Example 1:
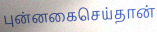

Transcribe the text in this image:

புன்னகைசெய்தான்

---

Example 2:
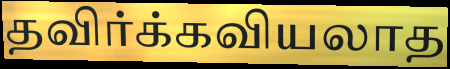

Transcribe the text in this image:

தவிர்க்கவியலாத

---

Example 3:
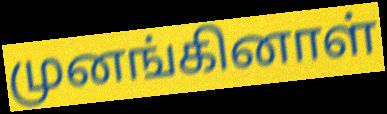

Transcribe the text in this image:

முனங்கினாள்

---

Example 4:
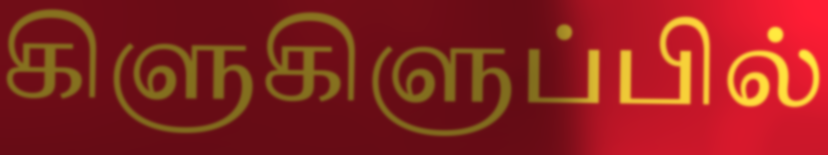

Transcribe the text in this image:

கிளுகிளுப்பில்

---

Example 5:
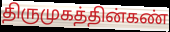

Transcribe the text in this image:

திருமுகத்தின்கண்